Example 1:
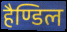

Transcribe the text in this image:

हैण्डिल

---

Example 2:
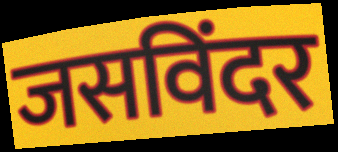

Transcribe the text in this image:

जसविंदर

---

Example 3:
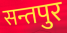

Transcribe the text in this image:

सन्तपुर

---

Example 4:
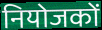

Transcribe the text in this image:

नियोजकों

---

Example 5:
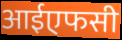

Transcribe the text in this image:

आईएफसी